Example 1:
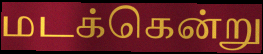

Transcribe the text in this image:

மடக்கென்று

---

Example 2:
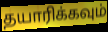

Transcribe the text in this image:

தயாரிக்கவும்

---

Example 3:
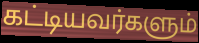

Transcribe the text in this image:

கட்டியவர்களும்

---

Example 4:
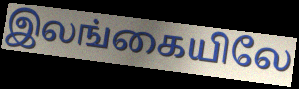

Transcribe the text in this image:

இலங்கையிலே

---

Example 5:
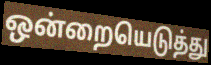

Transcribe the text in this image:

ஒன்றையெடுத்து